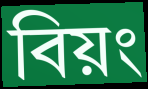
বিয়ং